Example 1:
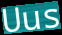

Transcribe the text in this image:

Uus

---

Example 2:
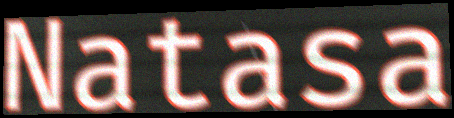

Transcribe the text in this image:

Natasa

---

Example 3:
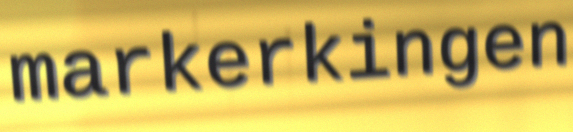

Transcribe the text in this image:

markerkingen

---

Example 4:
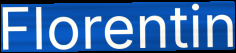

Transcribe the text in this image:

Florentin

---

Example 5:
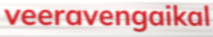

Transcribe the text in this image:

veeravengaikal